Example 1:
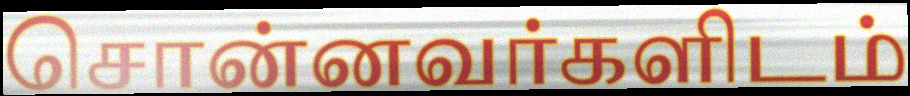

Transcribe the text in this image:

சொன்னவர்களிடம்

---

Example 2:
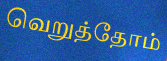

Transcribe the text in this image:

வெறுத்தோம்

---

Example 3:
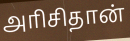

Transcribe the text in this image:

அரிசிதான்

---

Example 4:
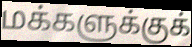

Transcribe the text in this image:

மக்களுக்குக்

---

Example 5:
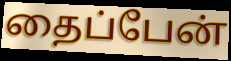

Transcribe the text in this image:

தைப்பேன்